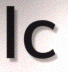
Ic